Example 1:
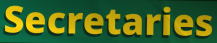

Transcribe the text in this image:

Secretaries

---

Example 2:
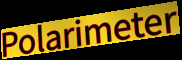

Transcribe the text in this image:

Polarimeter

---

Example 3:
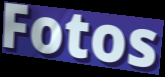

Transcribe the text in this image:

Fotos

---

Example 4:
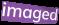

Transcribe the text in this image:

imaged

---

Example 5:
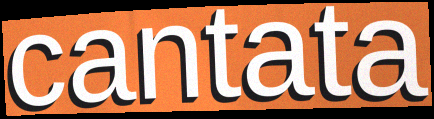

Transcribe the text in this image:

cantata